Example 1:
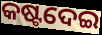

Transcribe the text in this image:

କଷ୍ଟଦେଇ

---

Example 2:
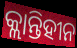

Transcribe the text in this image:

କ୍ଲାନ୍ତିହୀନ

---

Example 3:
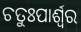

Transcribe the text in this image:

ଚତୁଃପାର୍ଶ୍ଵର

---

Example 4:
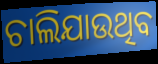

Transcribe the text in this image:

ଚାଲିଯାଉଥିବ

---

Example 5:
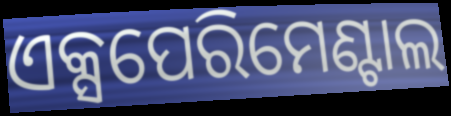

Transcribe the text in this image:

ଏକ୍ସପେରିମେଣ୍ଟାଲ